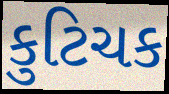
કુટિચક